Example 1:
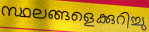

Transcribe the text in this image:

സ്ഥലങ്ങളെക്കുറിച്ചു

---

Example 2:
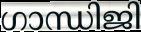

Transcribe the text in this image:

ഗാന്ധിജി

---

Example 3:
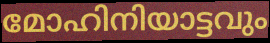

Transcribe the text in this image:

മോഹിനിയാട്ടവും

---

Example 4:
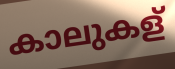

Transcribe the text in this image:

കാലുകള്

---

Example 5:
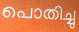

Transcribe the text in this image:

പൊതിച്ചു